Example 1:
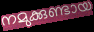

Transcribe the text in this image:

നമുക്കുണ്ടായ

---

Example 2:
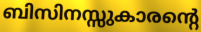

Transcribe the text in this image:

ബിസിനസ്സുകാരന്റെ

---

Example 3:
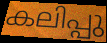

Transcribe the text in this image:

കലിപ്പു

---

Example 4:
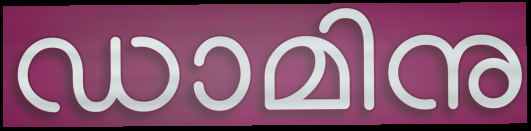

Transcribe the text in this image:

ഡാമിനു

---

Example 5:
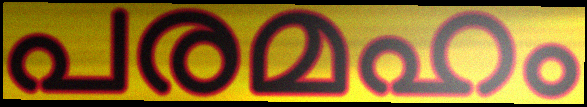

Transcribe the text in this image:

പരമഹം